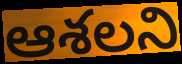
ఆశలని